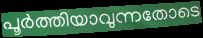
പൂർത്തിയാവുന്നതോടെ